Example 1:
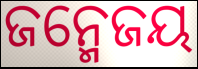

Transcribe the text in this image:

ଜନ୍ମେଜୟ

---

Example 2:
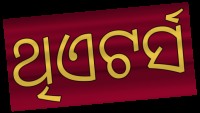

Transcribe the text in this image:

ଥିଏଟର୍ସ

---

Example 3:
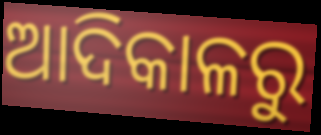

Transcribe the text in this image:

ଆଦିକାଳରୁ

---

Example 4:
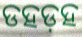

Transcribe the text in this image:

ଡହଡ଼ହ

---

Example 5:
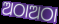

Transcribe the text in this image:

ଅଠାଅଠା